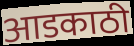
आडकाठी